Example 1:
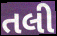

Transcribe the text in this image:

તલી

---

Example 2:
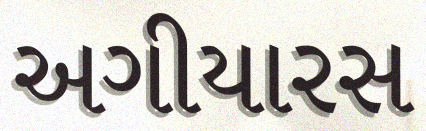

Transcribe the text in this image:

અગીયારસ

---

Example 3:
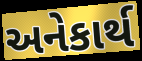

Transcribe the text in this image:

અનેકાર્થ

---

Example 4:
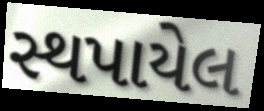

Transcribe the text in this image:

સ્થપાયેલ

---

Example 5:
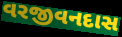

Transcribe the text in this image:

વરજીવનદાસ